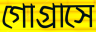
গোগ্রাসে